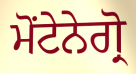
ਮੋਂਟੇਨੇਗ੍ਰੋ